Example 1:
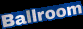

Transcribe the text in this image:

Ballroom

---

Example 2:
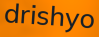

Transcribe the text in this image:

drishyo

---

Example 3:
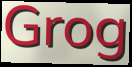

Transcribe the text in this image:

Grog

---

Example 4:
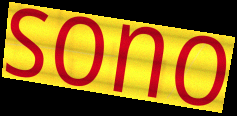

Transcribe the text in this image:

sono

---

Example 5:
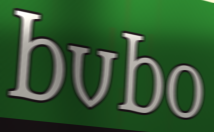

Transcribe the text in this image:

bubo